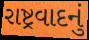
રાષ્ટ્રવાદનું